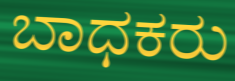
ಬಾಧಕರು